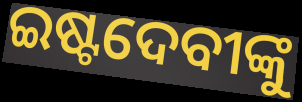
ଇଷ୍ଟଦେବୀଙ୍କୁ